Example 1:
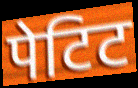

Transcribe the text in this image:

पेटिट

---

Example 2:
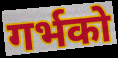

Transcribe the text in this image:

गर्भको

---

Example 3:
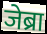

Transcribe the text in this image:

जेब्रा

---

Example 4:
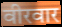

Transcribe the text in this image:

वीरवार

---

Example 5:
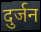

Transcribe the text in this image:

दुर्जन